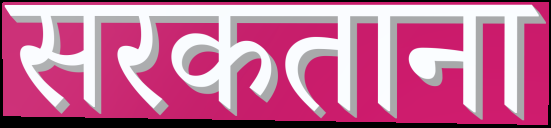
सरकताना